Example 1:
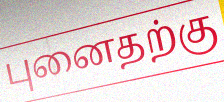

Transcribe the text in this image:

புனைதற்கு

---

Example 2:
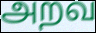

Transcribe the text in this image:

அறவ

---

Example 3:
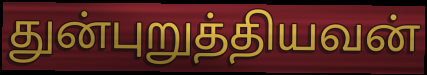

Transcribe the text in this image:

துன்புறுத்தியவன்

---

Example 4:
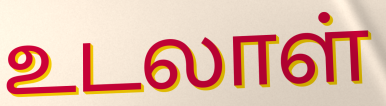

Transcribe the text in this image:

உடலாள்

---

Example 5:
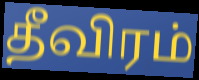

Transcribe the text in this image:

தீவிரம்